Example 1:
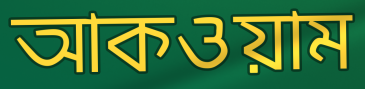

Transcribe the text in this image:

আকওয়াম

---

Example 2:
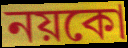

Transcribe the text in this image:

নয়কো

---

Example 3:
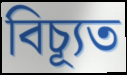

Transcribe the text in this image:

বিচ্যূত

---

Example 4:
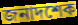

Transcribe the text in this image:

জনাদশেক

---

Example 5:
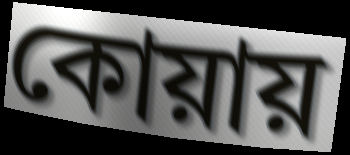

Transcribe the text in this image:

কোয়ায়